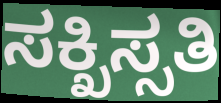
ಸಕ್ಖಿಸ್ಸತಿ